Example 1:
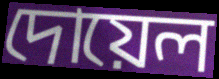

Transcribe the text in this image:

দোয়েল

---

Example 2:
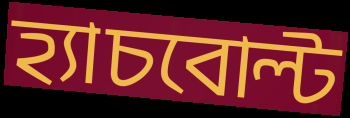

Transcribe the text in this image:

হ্যাচবোল্ট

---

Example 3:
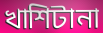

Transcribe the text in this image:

খাশিটানা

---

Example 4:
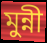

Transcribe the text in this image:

মুন্নী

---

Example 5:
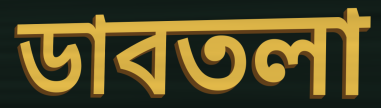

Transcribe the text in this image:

ডাবতলা